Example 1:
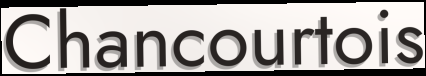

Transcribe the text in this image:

Chancourtois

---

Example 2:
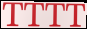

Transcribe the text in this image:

TTTT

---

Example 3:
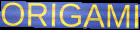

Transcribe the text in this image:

ORIGAMI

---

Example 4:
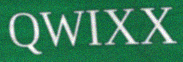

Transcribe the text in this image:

QWIXX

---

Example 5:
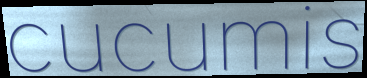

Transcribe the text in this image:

cucumis